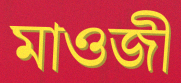
মাওজী